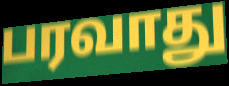
பரவாது